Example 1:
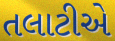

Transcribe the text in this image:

તલાટીએ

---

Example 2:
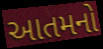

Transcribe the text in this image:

આતમનો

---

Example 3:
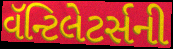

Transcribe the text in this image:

વૅન્ટિલેટર્સની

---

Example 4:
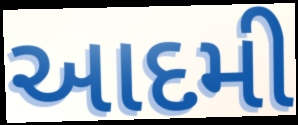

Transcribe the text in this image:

આદમી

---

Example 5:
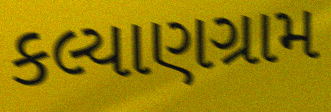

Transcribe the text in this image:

કલ્યાણગ્રામ